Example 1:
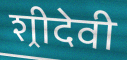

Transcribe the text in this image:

श्रीदेवी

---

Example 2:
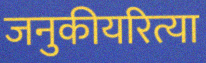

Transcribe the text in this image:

जनुकीयरित्या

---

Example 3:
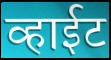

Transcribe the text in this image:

व्हाईट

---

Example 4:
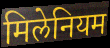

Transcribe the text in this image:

मिलेनियम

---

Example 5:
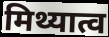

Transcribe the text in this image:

मिथ्यात्व